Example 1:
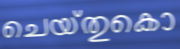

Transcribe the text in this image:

ചെയ്‌തുകൊ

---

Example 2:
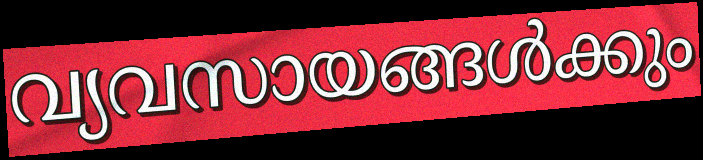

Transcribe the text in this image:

വ്യവസായങ്ങൾക്കും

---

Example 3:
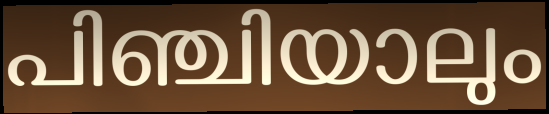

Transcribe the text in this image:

പിഞ്ചിയാലും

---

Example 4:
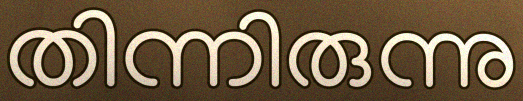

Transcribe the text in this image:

തിന്നിരുന്നു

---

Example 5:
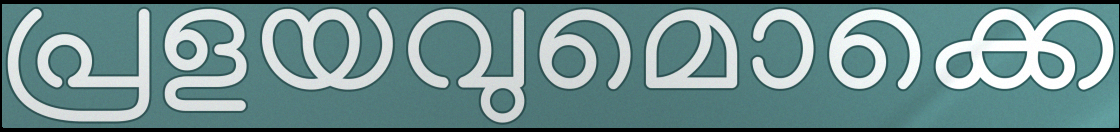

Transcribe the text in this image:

പ്രളയവുമൊക്കെ